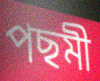
পছমী